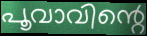
പൂവാവിന്റെ